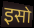
इसो